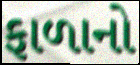
ફાળાનો